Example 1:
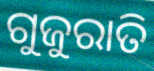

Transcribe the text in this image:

ଗୁଜୁରାତି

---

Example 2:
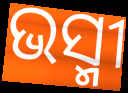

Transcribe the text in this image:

ଭସ୍ମୀ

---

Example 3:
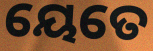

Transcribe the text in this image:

ୟେତେ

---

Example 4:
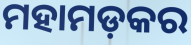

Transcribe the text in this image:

ମହାମଡ଼କର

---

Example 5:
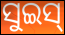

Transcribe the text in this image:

ସୁଇସ୍